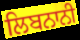
ਲਿਬਨਾਨੀ